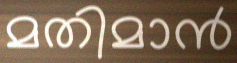
മതിമാൻ